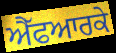
ਐੱਫਆਰਕੇ